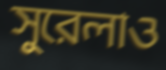
সুরেলাও